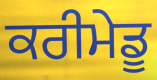
ਕਰੀਮੇਡੂ